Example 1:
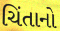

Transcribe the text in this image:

ચિંતાનો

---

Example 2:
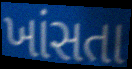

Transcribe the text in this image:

ખાંસતા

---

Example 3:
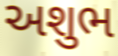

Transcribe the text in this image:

અશુભ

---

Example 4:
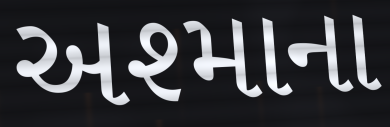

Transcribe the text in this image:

અશ્માના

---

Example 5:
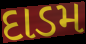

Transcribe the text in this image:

દાડમ